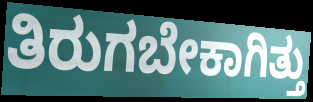
ತಿರುಗಬೇಕಾಗಿತ್ತು